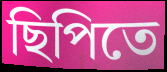
ছিপিতে